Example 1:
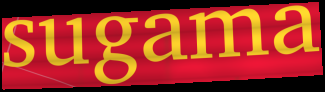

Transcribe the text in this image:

sugama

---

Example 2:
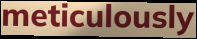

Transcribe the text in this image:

meticulously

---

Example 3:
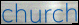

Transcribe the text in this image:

church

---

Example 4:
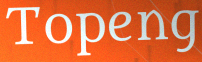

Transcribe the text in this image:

Topeng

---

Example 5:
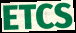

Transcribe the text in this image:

ETCS